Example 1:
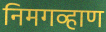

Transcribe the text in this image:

निमगव्हाण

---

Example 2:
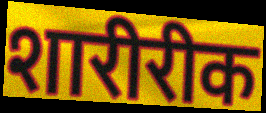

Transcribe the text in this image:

शारीरीक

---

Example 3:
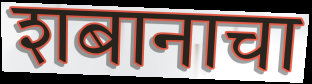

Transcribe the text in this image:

शबानाचा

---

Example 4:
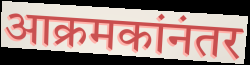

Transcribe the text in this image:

आक्रमकांनंतर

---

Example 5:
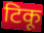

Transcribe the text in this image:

टिकू